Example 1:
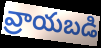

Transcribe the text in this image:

వ్రాయబడి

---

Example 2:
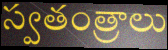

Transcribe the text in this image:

స్వతంత్రాలు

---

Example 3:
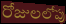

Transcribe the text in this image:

రోజులలోపు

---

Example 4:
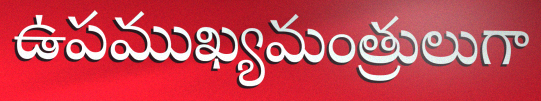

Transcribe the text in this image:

ఉపముఖ్యమంత్రులుగా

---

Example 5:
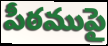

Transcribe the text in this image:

పీఠముపై